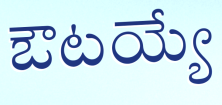
ఔటయ్యే